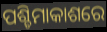
ପଶ୍ଚିମାକାଶରେ